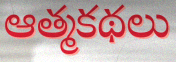
ఆత్మకథలు